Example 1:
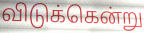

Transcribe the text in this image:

விடுக்கென்று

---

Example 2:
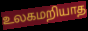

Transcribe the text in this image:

உலகமறியாத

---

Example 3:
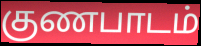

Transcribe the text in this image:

குணபாடம்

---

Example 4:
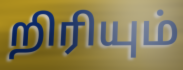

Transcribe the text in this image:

றிரியும்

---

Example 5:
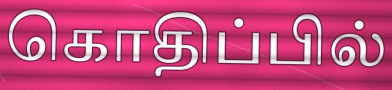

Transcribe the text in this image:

கொதிப்பில்